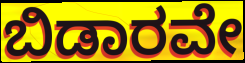
ಬಿಡಾರವೇ